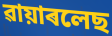
ৱায়াৰলেছ